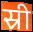
स्री